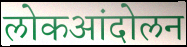
लोकआंदोलन